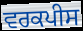
ਵਰਕਪੀਸ